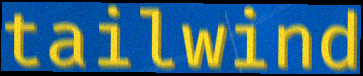
tailwind